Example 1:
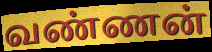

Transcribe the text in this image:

வண்ணன்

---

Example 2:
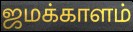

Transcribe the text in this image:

ஜமக்காளம்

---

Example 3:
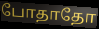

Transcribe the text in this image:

போதாதோ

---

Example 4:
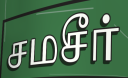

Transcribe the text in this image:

சமசீர்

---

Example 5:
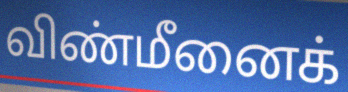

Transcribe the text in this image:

விண்மீனைக்